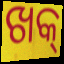
ଖକ୍